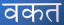
वकत